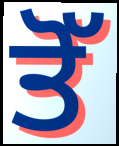
ਤੋੱ